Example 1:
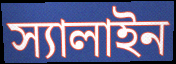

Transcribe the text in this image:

স্যালাইন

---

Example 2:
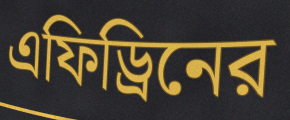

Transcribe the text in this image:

এফিড্রিনের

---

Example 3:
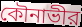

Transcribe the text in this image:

কৌনাভীর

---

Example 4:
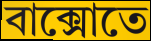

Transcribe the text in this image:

বাক্সোতে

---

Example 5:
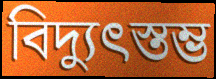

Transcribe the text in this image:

বিদ্যুৎস্তম্ভ